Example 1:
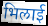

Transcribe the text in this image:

भिलाई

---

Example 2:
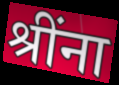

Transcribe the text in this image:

श्रींना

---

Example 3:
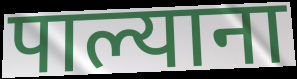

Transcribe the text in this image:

पाल्याना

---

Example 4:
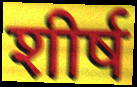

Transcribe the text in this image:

शीर्ष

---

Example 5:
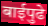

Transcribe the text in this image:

बाईपुढे